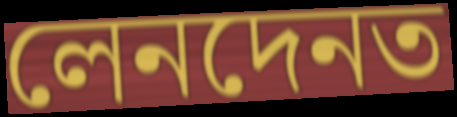
লেনদেনত